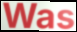
Was